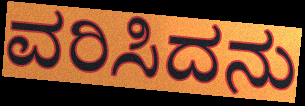
ವರಿಸಿದನು